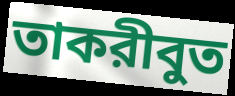
তাকরীবুত